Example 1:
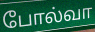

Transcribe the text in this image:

போல்வா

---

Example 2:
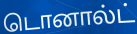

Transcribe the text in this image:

டொனால்ட்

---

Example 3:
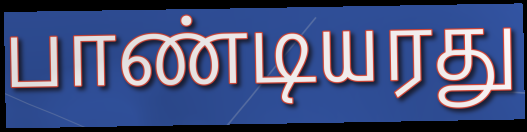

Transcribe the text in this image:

பாண்டியரது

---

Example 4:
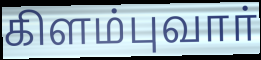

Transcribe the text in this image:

கிளம்புவார்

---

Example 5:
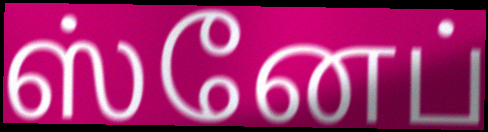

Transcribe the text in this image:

ஸ்னேப்